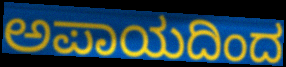
ಅಪಾಯದಿಂದ